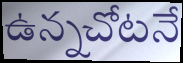
ఉన్నచోటనే